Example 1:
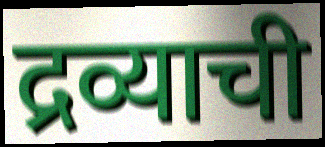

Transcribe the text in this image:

द्रव्याची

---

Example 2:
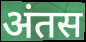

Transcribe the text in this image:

अंतस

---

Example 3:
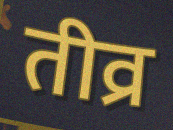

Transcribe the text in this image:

तीव्र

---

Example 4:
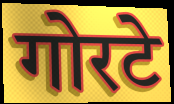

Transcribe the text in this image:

गोरटे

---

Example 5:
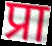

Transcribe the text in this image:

प्रा